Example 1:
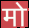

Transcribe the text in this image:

मो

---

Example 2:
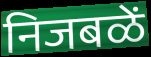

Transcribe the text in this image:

निजबळें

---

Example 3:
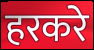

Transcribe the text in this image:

हरकरे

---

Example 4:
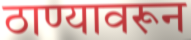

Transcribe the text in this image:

ठाण्यावरून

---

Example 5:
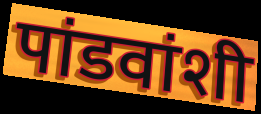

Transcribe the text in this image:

पांडवांशी